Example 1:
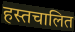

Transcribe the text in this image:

हस्तचालित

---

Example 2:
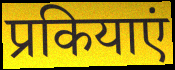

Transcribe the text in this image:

प्रकियाएं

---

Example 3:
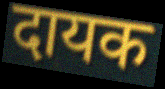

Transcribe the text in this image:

दायक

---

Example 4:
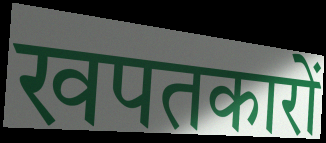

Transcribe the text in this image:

खपतकारों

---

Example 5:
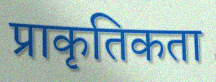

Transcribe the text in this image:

प्राकृतिकता